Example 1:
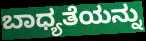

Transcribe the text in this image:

ಬಾಧ್ಯತೆಯನ್ನು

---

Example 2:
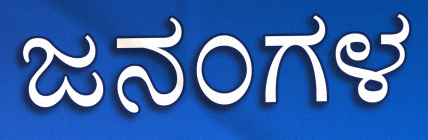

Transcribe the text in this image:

ಜನಂಗಳ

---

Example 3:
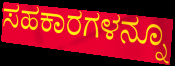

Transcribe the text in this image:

ಸಹಕಾರಗಳನ್ನೂ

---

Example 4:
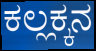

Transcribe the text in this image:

ಕಲ್ಲಕ್ಕನ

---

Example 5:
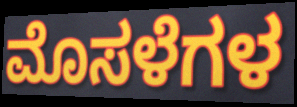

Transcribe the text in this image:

ಮೊಸಳೆಗಳ